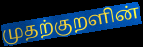
முதற்குறளின்